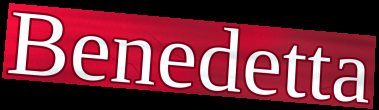
Benedetta